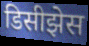
डिसीझेस